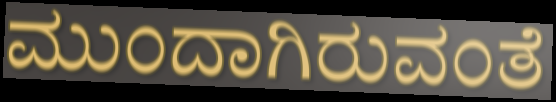
ಮುಂದಾಗಿರುವಂತೆ